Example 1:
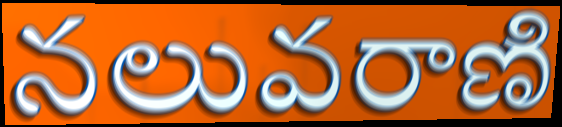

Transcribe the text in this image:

నలువరాణి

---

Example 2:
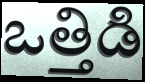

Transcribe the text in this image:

ఒత్తిడి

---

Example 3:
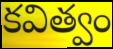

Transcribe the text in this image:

కవిత్వం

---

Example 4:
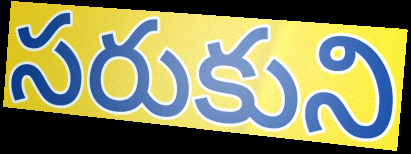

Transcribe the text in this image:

సరుకుని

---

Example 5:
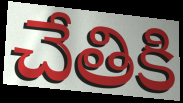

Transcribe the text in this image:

చేతికి